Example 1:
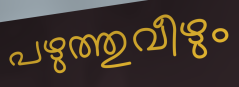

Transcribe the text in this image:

പഴുത്തുവീഴും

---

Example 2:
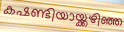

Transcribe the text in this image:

കഷണ്ടിയായ്ക്കഴിഞ്ഞ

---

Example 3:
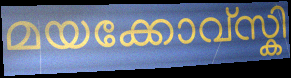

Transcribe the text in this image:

മയക്കോവ്സ്കി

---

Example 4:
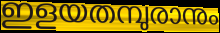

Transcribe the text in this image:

ഇളയതമ്പുരാനും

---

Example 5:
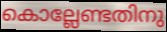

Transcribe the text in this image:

കൊല്ലേണ്ടതിനു